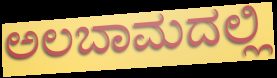
ಅಲಬಾಮದಲ್ಲಿ